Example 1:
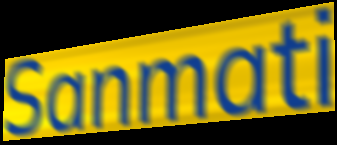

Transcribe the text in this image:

Sanmati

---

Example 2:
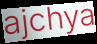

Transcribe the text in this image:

ajchya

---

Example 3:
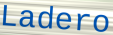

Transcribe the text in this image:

Ladero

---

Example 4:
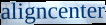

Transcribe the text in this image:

aligncenter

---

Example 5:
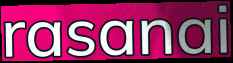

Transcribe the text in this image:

rasanai